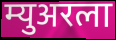
म्युअरला